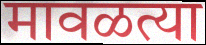
मावळत्या